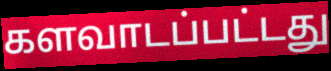
களவாடப்பட்டது